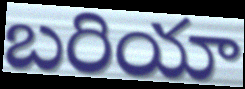
బరియా